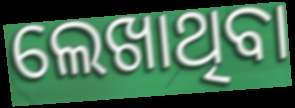
ଲେଖାଥିବା